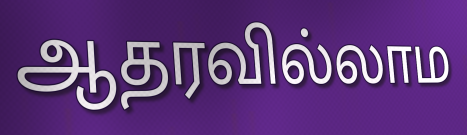
ஆதரவில்லாம